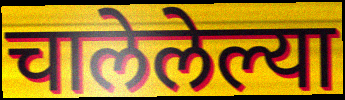
चालेलेल्या